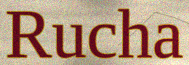
Rucha